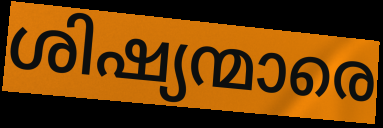
ശിഷ്യന്മാരെ